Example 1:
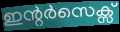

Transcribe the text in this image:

ഇന്റർസെക്സ്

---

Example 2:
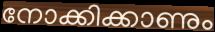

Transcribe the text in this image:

നോക്കിക്കാണും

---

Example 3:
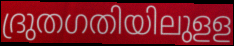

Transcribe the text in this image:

ദ്രുതഗതിയിലുളള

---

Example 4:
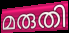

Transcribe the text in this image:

മരുതി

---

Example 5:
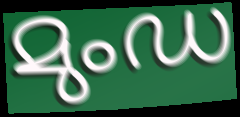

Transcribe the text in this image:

മുംഡ